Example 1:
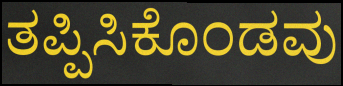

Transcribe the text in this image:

ತಪ್ಪಿಸಿಕೊಂಡವು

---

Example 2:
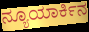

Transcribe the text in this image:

ನ್ಯೂಯಾರ್ಕಿನ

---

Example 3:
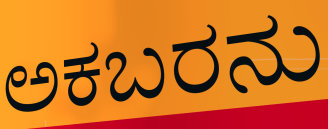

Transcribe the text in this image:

ಅಕಬರನು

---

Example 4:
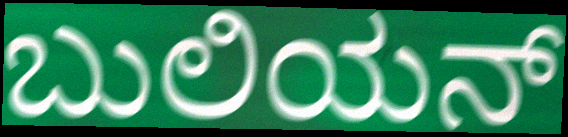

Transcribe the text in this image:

ಬುಲಿಯನ್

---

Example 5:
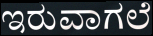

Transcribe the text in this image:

ಇರುವಾಗಲೆ